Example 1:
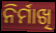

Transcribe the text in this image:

ନିର୍ମାଖି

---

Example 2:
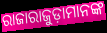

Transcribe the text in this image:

ରାଜାରାଜୁଡ଼ାମାନଙ୍କ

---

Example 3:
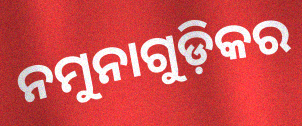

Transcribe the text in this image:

ନମୁନାଗୁଡ଼ିକର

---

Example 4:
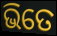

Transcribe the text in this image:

ଭିତେ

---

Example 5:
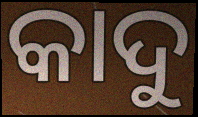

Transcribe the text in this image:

କାଦୁ